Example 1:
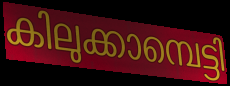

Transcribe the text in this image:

കിലുക്കാമ്പെട്ടി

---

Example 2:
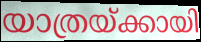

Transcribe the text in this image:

യാത്രയ്ക്കായി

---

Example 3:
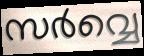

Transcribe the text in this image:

സർവ്വെ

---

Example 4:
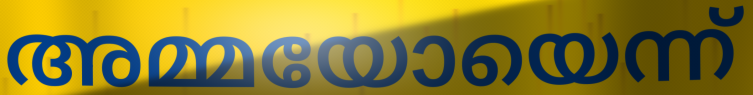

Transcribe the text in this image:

അമ്മയോയെന്ന്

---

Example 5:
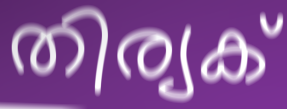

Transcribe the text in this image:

തിര്യക്